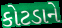
કોટડાને